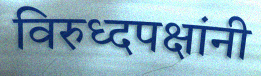
विरुध्दपक्षांनी